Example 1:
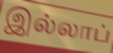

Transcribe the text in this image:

இல்லாப்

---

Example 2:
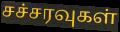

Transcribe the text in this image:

சச்சரவுகள்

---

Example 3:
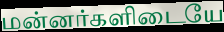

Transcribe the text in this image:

மன்னர்களிடையே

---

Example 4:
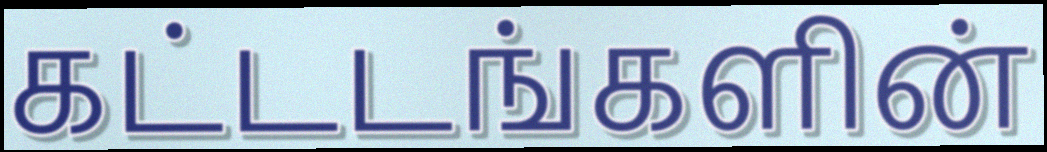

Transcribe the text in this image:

கட்டடங்களின்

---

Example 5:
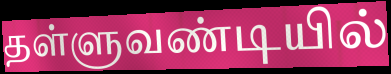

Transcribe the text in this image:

தள்ளுவண்டியில்